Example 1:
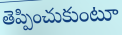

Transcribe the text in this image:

తెప్పించుకుంటూ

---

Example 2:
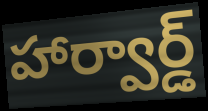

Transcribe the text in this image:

హార్వార్డ్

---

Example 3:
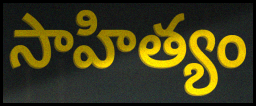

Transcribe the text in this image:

సాహిత్యం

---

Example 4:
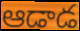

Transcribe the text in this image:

ఆడాడ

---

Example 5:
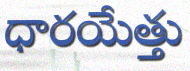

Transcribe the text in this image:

ధారయేత్తు